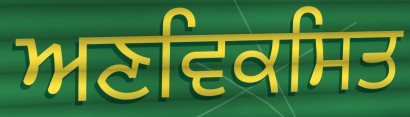
ਅਣਵਿਕਸਿਤ